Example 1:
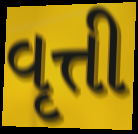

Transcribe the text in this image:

વૃત્તી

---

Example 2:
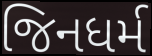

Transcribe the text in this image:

જિનધર્મ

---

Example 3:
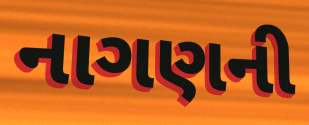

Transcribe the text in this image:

નાગણની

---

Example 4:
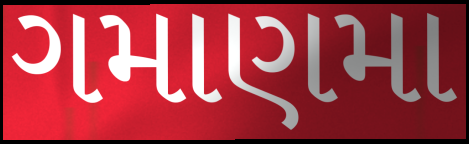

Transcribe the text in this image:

ગમાણમા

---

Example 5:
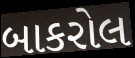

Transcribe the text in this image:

બાકરોલ